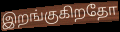
இறங்குகிறதோ